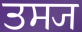
ਤਸ੍ਯ